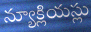
న్యూక్లియస్లు